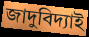
জাদুবিদ্যাই